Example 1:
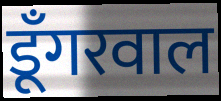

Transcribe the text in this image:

डूँगरवाल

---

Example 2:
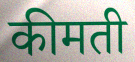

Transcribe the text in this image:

कीमती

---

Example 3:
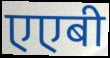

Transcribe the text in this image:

एएबी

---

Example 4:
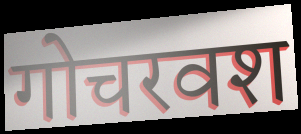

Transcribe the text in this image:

गोचरवश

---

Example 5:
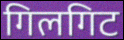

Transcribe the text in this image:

गिलगिट